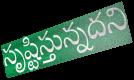
సృష్టిస్తున్నదని